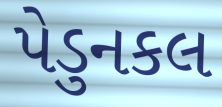
પેડુનકલ